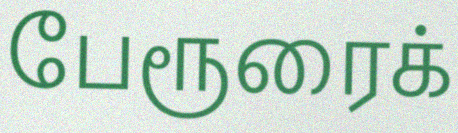
பேரூரைக்